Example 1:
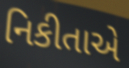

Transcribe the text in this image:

નિકીતાએ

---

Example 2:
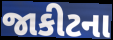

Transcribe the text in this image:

જાકીટના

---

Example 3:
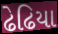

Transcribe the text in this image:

ઢેઢિયા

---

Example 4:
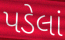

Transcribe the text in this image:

પડેલાં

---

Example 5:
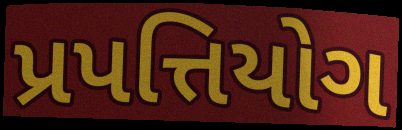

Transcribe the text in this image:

પ્રપત્તિયોગ